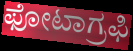
ಫೋಟಾಗ್ರಫಿ